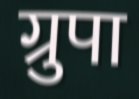
ग्रुपा